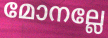
മോനല്ലേ